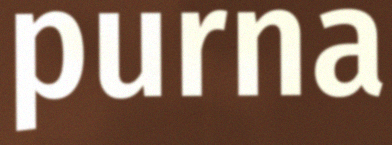
purna